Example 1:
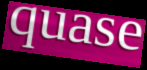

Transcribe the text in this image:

quase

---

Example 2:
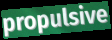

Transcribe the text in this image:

propulsive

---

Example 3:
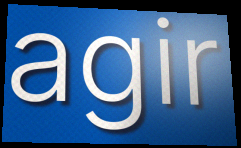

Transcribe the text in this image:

agir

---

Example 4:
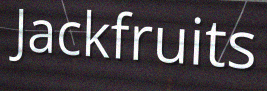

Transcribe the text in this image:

Jackfruits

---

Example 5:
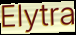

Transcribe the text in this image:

Elytra